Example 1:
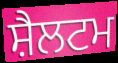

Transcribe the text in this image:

ਸ਼ੈਲਟਮ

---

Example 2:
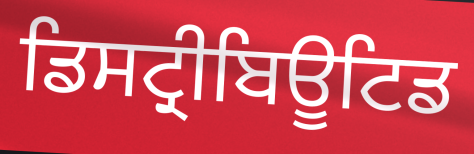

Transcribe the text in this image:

ਡਿਸਟ੍ਰੀਬਿਊਟਿਡ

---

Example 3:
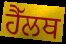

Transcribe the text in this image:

ਹੈੱਲਥ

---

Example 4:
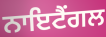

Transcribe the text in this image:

ਨਾਇਟੈਂਗਲ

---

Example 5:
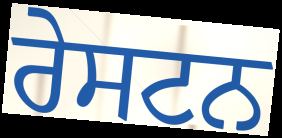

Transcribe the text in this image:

ਰੇਸਟਨ